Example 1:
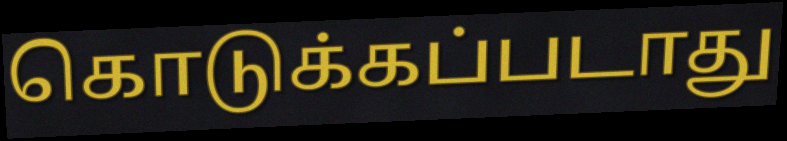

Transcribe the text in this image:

கொடுக்கப்படாது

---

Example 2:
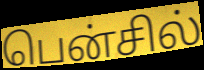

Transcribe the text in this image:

பென்சில்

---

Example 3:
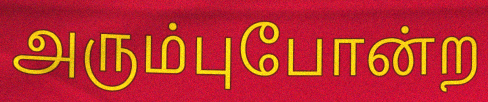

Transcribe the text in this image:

அரும்புபோன்ற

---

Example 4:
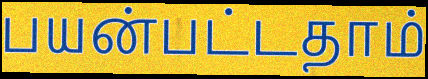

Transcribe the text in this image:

பயன்பட்டதாம்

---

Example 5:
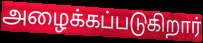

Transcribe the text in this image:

அழைக்கப்படுகிறார்